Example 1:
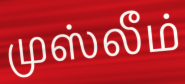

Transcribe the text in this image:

முஸ்லீம்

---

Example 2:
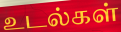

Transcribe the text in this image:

உடல்கள்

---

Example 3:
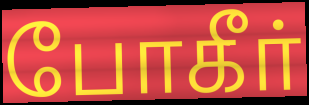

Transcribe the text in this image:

போகீர்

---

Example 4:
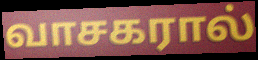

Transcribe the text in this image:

வாசகரால்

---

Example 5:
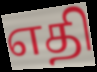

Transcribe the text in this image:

எதி